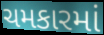
ચમકારમાં